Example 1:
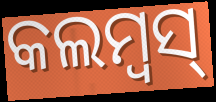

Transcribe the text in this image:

କଲମ୍ବସ୍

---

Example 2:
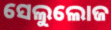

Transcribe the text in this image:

ସେଲୁଲୋଜ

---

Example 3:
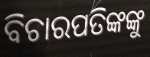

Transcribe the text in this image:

ବିଚାରପତିଙ୍କଙ୍କୁ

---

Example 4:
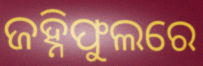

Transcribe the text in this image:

ଜହ୍ନିଫୁଲରେ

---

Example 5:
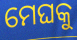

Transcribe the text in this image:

ମେଘକୁ